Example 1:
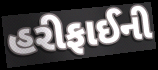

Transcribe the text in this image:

હરીફાઈની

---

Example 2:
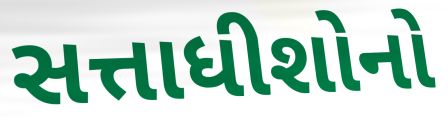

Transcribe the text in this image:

સત્તાધીશોનો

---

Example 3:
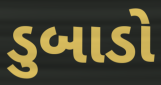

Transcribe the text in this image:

ડુબાડો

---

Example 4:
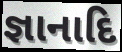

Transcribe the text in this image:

જ્ઞાનાદિ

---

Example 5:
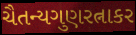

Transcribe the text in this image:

ચૈતન્યગુણરત્નાકર